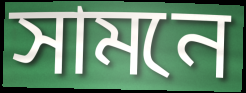
সামনে